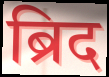
ब्रिद